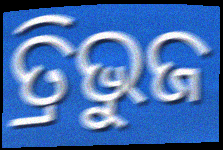
ତ୍ରିଭୁଜ